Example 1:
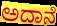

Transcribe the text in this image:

ಅದಾನೆ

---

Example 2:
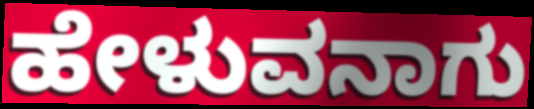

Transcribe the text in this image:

ಹೇಳುವನಾಗು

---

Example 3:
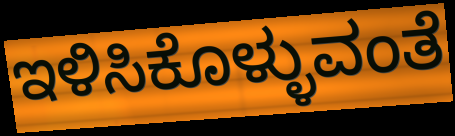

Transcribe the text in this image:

ಇಳಿಸಿಕೊಳ್ಳುವಂತೆ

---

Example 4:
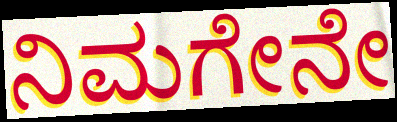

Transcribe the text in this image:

ನಿಮಗೇನೇ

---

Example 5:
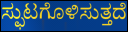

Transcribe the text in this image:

ಸ್ಫುಟಗೊಳಿಸುತ್ತದೆ